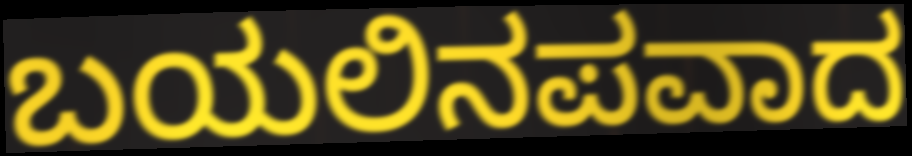
ಬಯಲಿನಪವಾದ